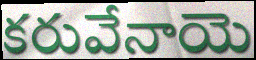
కరువేనాయె